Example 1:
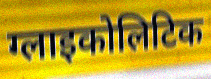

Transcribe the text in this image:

ग्लाइकोलिटिक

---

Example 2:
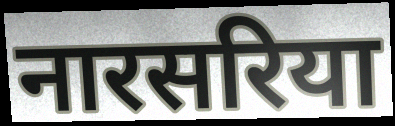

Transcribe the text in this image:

नारसरिया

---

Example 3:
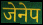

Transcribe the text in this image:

जेनेप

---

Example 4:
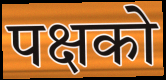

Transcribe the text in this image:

पक्षको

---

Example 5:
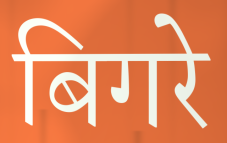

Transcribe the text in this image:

बिगरे